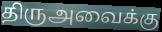
திருஅவைக்கு